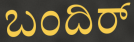
ಬಂದಿರ್